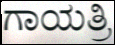
ಗಾಯತ್ರಿ